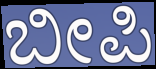
ಬೀಪಿ